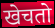
खेचतो